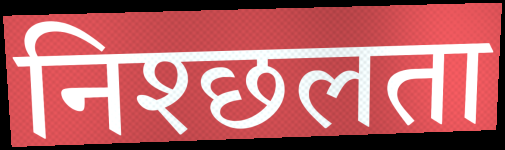
निश्छलता